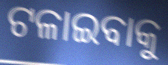
ଟଳାଇବାକୁ